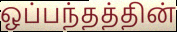
ஒப்பந்தத்தின்